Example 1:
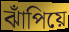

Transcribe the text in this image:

ঝাঁপিয়ে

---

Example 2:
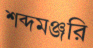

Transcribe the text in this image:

শব্দমঞ্জরি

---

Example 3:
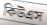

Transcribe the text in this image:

কিউএস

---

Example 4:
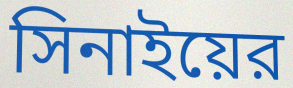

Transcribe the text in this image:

সিনাইয়ের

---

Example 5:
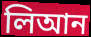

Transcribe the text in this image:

লিআন